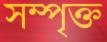
সম্পৃক্ত